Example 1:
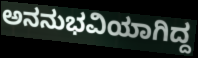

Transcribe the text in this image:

ಅನನುಭವಿಯಾಗಿದ್ದ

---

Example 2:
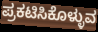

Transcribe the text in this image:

ಪ್ರಕಟಿಸಿಕೊಳ್ಳುವ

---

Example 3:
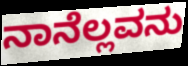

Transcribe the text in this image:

ನಾನೆಲ್ಲವನು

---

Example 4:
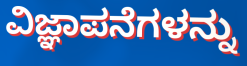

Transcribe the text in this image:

ವಿಜ್ಞಾಪನೆಗಳನ್ನು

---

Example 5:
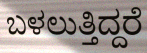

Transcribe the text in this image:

ಬಳಲುತ್ತಿದ್ದರೆ